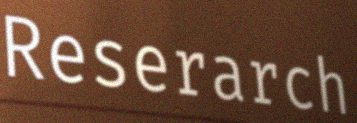
Reserarch